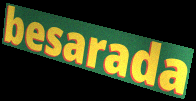
besarada